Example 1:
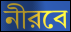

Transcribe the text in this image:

নীরবে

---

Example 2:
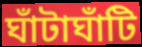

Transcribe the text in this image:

ঘাঁটাঘাঁটি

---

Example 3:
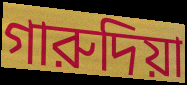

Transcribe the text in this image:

গারুদিয়া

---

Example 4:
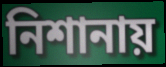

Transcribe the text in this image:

নিশানায়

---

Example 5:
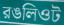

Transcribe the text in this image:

রঙলিওট